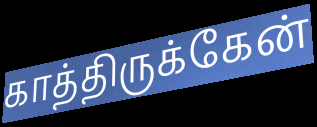
காத்திருக்கேன்